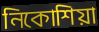
নিকোশিয়া